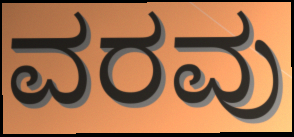
ವರವು